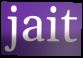
jait